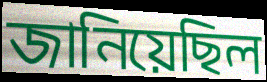
জানিয়েছিল